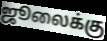
ஜூலைக்கு